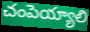
చంపెయ్యాలి